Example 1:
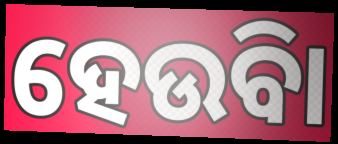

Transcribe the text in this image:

ହେଉିବା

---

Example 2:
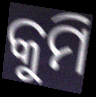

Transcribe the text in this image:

କୁମି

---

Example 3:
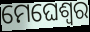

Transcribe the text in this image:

ମେଘେଶ୍ୱର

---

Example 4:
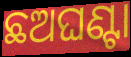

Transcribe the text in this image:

ଛଅଘଣ୍ଟା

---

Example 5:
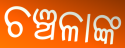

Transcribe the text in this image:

ଚଞ୍ଚଳାଙ୍କ